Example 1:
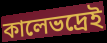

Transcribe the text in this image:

কালেভদ্রেই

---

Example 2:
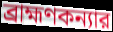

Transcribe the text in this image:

ব্রাহ্মণকন্যার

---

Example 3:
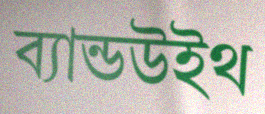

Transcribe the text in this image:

ব্যান্ডউইথ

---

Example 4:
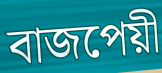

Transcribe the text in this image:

বাজপেয়ী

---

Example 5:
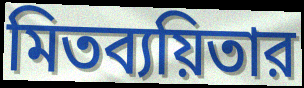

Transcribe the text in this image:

মিতব্যয়িতার